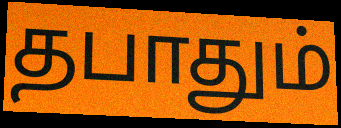
தபாதும்